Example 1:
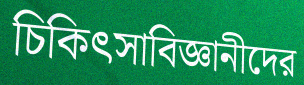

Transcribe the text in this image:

চিকিৎসাবিজ্ঞানীদের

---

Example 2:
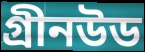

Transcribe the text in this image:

গ্রীনউড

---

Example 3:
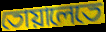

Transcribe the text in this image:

তোয়ালেতে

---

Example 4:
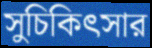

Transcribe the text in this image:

সুচিকিৎসার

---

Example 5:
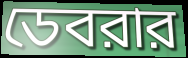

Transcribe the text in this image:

ডেবরার